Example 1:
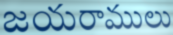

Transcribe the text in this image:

జయరాములు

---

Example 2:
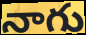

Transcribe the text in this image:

నాగు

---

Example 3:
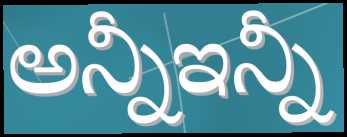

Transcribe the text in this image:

అన్నీఇన్నీ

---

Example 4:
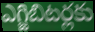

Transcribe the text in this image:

ఎగ్జిబిటర్లకు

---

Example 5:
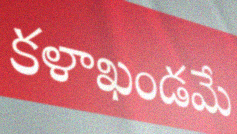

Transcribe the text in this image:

కళాఖండమే